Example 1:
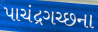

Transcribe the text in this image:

પાચંદ્રગચ્છના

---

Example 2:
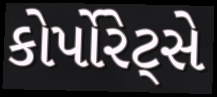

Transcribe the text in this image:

કોર્પોરેટ્સે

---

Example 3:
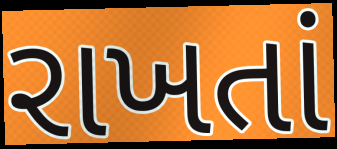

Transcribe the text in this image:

રાખતાં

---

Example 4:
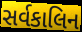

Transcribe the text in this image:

સર્વકાલિન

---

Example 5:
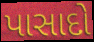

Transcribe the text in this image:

પાસાદો